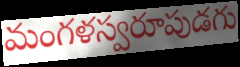
మంగళస్వరూపుడగు